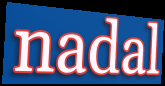
nadal